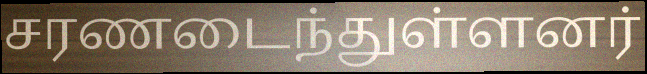
சரணடைந்துள்ளனர்